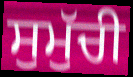
ਸੁਮੁੱਚੀ